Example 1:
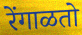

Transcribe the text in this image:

रेंगाळतो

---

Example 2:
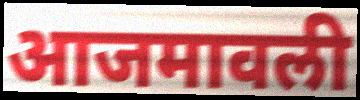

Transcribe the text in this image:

आजमावली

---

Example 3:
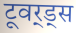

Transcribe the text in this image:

टूवर्ड्स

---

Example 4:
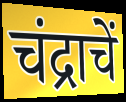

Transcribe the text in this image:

चंद्राचें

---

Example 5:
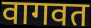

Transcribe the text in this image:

वागवत